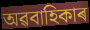
অৱবাহিকাৰ